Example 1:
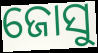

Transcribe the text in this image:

ଜୋସୁ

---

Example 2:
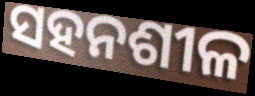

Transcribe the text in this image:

ସହନଶୀଳ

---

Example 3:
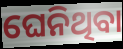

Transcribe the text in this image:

ଘେନିଥିବା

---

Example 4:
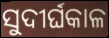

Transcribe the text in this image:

ସୁଦୀର୍ଘକାଳ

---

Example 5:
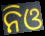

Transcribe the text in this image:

ନିଓ